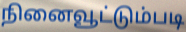
நினைவூட்டும்படி